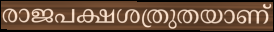
രാജപക്ഷശത്രുതയാണ്